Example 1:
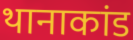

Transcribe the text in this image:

थानाकांड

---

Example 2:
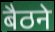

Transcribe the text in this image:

बैठने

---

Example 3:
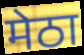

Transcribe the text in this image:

मेठा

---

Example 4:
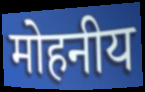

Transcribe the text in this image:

मोहनीय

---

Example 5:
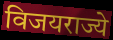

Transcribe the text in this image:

विजयराज्ये